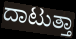
ದಾಟುತ್ತಾ